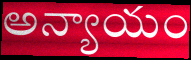
అన్యాయం